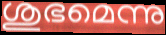
ശുഭമെന്നു